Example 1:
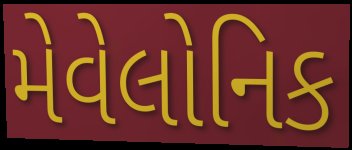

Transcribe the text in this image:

મેવેલોનિક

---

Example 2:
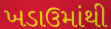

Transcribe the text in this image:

ખડાઉમાંથી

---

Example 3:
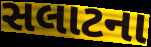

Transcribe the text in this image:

સલાટના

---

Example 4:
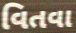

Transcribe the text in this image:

વિતવા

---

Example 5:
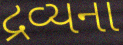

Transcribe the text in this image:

દ્રવ્યના